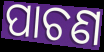
ପାଚଣ